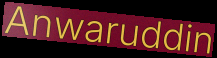
Anwaruddin